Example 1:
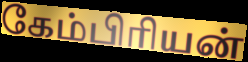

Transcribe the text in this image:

கேம்பிரியன்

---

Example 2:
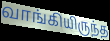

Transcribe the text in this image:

வாங்கியிருந்த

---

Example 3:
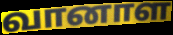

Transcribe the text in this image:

வானாள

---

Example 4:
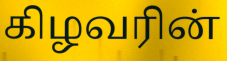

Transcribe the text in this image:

கிழவரின்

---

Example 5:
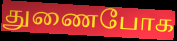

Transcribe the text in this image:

துணைபோக